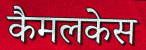
कैमलकेस